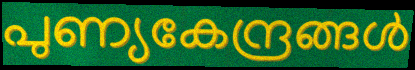
പുണ്യകേന്ദ്രങ്ങൾ